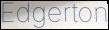
Edgerton